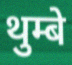
थुम्बे